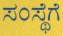
ಸಂಸ್ಥೆಗೆ